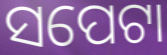
ସପେଟା